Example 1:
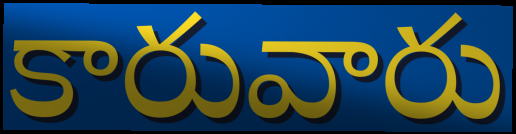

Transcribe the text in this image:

కారువారు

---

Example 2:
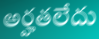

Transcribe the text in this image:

అర్హతలేదు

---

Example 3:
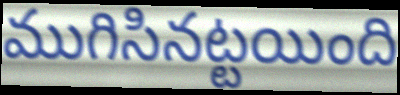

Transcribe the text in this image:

ముగిసినట్టయింది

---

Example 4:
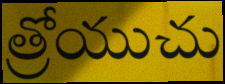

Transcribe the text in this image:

త్రోయుచు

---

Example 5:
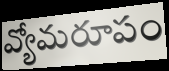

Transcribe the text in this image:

వ్యోమరూపం